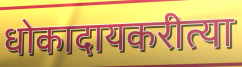
धोकादायकरीत्या